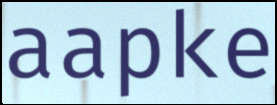
aapke